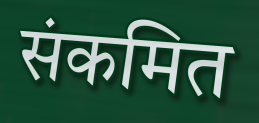
संकमित